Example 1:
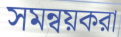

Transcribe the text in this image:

সমন্বয়করা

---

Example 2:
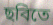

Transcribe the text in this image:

ছবিতে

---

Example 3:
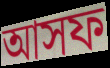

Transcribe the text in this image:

আসফ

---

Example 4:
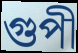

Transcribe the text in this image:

গুপী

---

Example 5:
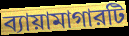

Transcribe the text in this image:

ব্যায়ামাগারটি